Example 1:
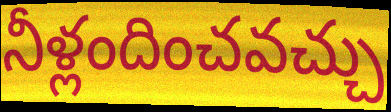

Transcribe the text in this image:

నీళ్లందించవచ్చు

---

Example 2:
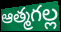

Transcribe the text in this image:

ఆత్మగల్ల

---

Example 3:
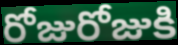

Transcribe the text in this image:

రోజురోజుకి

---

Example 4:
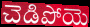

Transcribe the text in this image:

చెడిపోయె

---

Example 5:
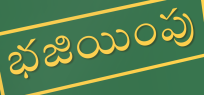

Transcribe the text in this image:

భజియింపు